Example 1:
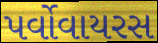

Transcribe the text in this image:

પર્વોવાયરસ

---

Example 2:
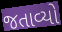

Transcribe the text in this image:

જતાવ્યો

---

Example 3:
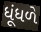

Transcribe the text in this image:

ધૂંધળે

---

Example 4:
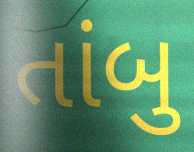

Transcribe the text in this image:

તાંબુ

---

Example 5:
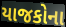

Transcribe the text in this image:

યાજકોના